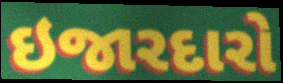
ઇજારદારો